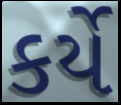
કર્યે